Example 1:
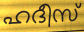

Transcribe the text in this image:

ഹദീസ്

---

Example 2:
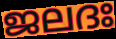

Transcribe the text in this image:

ജലദഃ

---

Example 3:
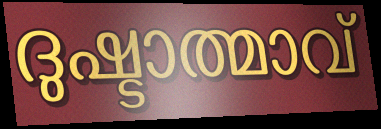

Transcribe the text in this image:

ദുഷ്ടാത്മാവ്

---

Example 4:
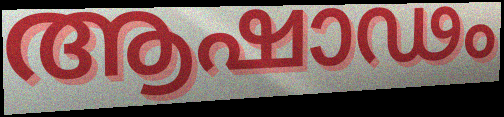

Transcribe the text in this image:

ആഷാഢം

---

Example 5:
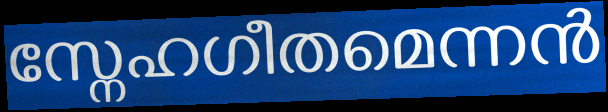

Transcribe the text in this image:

സ്നേഹഗീതമെന്നൻ